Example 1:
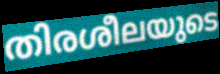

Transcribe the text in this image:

തിരശീലയുടെ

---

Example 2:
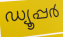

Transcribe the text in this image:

ഡ്യൂപ്പർ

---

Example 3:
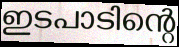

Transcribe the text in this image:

ഇടപാടിന്റെ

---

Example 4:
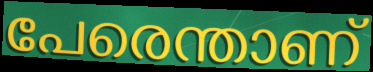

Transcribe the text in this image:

പേരെന്താണ്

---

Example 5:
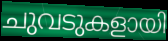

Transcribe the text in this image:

ചുവടുകളായി